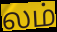
லம்